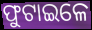
ଫୁଟାଇଳେ